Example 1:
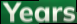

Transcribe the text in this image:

Years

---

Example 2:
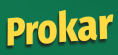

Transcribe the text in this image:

Prokar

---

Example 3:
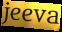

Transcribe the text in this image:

jeeva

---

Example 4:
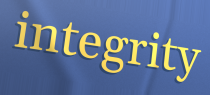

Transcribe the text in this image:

integrity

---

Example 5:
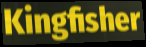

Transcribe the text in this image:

Kingfisher